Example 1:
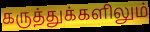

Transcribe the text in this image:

கருத்துக்களிலும்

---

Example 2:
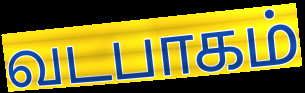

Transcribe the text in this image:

வடபாகம்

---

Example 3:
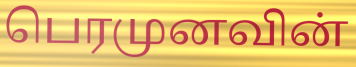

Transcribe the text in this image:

பெரமுனவின்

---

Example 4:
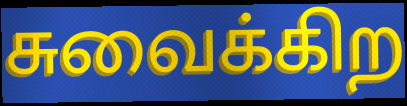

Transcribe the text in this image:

சுவைக்கிற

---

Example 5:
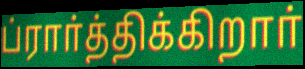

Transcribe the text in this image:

ப்ரார்த்திக்கிறார்